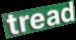
tread